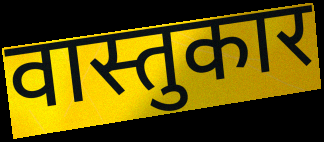
वास्तुकार